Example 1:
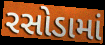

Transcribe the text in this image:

રસોડામાં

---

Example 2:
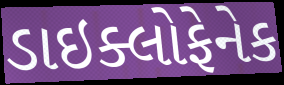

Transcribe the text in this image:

ડાઇક્લોફેનેક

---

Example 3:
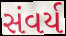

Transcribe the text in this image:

સંવર્ય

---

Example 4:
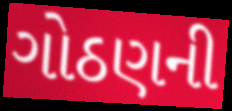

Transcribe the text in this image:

ગોઠણની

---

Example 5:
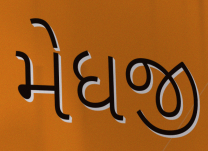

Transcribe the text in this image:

મેધજી